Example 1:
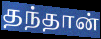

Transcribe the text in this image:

தந்தான்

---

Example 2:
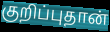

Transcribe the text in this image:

குறிப்புதான்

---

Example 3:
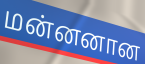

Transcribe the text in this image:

மன்னனான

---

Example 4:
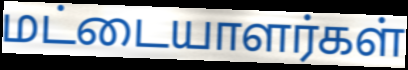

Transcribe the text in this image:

மட்டையாளர்கள்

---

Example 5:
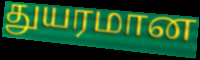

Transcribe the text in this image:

துயரமான